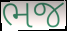
ભજ